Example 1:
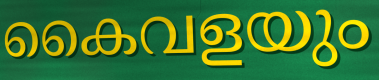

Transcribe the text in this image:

കൈവളയും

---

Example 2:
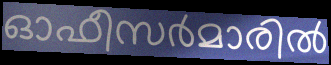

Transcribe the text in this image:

ഓഫീസർമാരിൽ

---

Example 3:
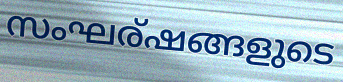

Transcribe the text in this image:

സംഘര്ഷങ്ങളുടെ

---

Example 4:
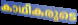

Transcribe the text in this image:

കാഥികരുടെ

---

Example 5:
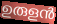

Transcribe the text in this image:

ഉരുളൻ